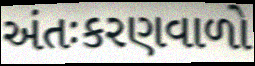
અંતઃકરણવાળો